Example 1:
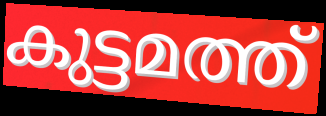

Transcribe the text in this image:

കുട്ടമത്ത്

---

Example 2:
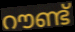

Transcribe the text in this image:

റൗണ്ട്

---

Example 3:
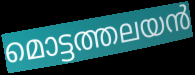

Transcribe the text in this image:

മൊട്ടത്തലയൻ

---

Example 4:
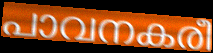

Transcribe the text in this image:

പാവനകരീ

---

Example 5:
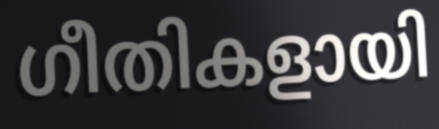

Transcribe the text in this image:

ഗീതികളായി